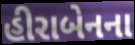
હીરાબેનના